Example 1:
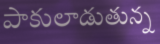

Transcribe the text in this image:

పాకులాడుతున్న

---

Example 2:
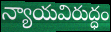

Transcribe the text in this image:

న్యాయవిరుద్ధం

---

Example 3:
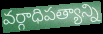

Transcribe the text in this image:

వర్గాధిపత్యాన్ని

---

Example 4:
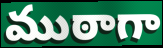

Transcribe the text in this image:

ముఠాగా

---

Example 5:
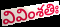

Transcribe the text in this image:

వివింశతిః